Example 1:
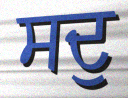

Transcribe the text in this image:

ਸਦੁ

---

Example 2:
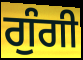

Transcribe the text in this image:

ਗੁੰਗੀ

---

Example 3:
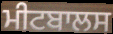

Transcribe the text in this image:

ਮੀਟਬਾਲਸ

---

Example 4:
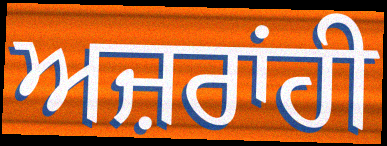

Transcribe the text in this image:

ਅਜ਼ਰਾਂਹੀ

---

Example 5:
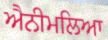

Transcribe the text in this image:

ਐਨੀਮਲਿਆ